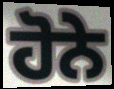
ਹੋਨੇ